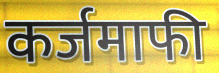
कर्जमाफी